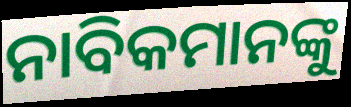
ନାବିକମାନଙ୍କୁ